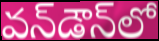
వన్‌డౌన్‌లో